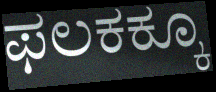
ಫಲಕಕ್ಕೂ